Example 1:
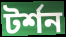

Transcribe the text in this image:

টর্শন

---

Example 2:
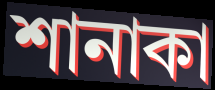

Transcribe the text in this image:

শানাকা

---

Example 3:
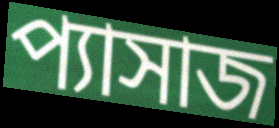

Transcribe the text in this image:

প্যাসাজ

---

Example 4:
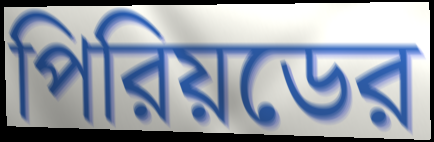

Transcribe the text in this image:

পিরিয়ডের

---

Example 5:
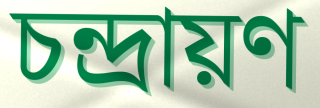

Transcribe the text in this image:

চন্দ্রায়ণ